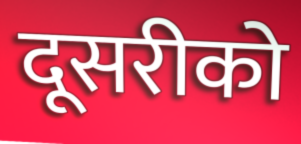
दूसरीको